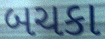
બચકા